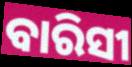
ବାରିସୀ